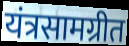
यंत्रसामग्रीत